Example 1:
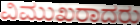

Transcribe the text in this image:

ವಿಮುಖರಾದರು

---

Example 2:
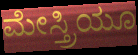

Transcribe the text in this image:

ಮೇಸ್ತ್ರಿಯೂ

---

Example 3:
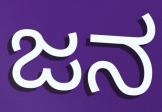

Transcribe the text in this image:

ಜನ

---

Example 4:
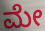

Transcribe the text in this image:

ಮೇ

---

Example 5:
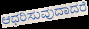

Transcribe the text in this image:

ಆಧರಿಸುವುದಾದರೆ